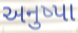
અનુષ્પા